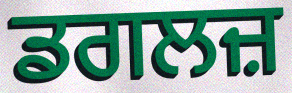
ਡਗਲਜ਼